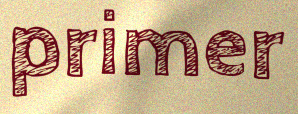
primer